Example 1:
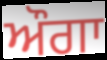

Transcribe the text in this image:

ਔਗਾ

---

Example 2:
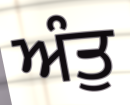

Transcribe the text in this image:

ਅੰਤੁ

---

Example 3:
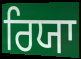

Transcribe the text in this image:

ਰਿਯਾ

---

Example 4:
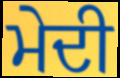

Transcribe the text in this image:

ਮੇਦੀ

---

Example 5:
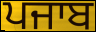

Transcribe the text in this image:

ਪਜਾਬ